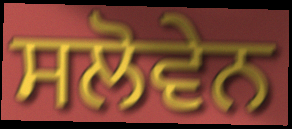
ਸਲੋਵੇਨ